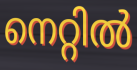
നെറ്റിൽ